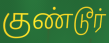
குண்டூர்